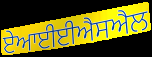
ਏਆਈਈਐਸਐਲ